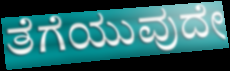
ತೆಗೆಯುವುದೇ